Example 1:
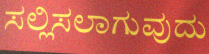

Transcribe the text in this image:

ಸಲ್ಲಿಸಲಾಗುವುದು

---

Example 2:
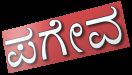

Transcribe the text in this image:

ಪಗೇವ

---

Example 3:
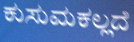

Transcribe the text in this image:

ಕುಸುಮಕಲ್ಲದೆ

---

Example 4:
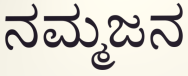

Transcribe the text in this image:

ನಮ್ಮಜನ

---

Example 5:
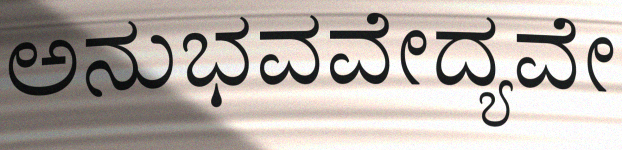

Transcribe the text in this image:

ಅನುಭವವೇದ್ಯವೇ